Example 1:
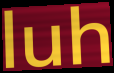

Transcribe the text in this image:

luh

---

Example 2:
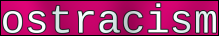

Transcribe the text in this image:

ostracism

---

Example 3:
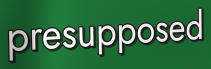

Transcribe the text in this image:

presupposed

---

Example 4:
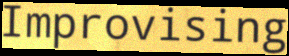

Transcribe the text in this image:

Improvising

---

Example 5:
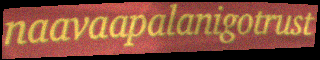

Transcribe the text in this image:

naavaapalanigotrust